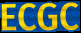
ECGC